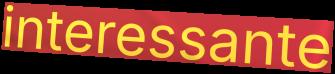
interessante